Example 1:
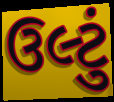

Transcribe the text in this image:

ઉલ્ટું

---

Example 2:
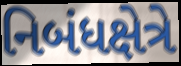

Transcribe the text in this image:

નિબંધક્ષેત્રે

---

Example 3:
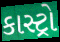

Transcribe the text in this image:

કાસ્ટ્રો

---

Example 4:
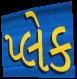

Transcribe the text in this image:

પ્લેક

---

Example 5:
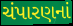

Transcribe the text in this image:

ચંપારણનાં